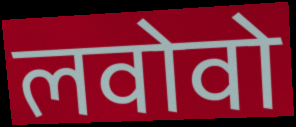
लवोवो